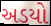
અડયો